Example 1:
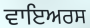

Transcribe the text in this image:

ਵਾਇਅਰਸ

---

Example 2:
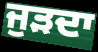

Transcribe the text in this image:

ਜੁੜਦਾ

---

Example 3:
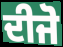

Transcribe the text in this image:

ਦੀਜੋ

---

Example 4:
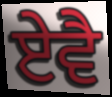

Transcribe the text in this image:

ਏਵੈ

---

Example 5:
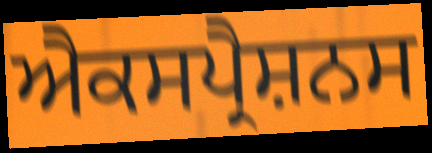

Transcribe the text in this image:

ਐਕਸਪ੍ਰੈਸ਼ਨਸ